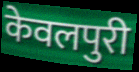
केवलपुरी